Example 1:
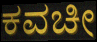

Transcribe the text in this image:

ಕವಚೀ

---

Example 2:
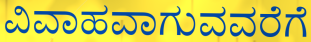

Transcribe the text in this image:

ವಿವಾಹವಾಗುವವರೆಗೆ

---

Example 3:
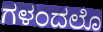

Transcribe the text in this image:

ಗಳಂದಲೊ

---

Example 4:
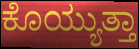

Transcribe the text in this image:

ಕೊಯ್ಯುತ್ತಾ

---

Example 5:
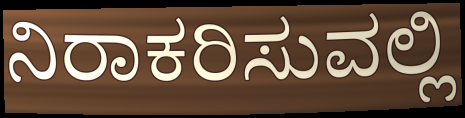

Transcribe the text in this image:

ನಿರಾಕರಿಸುವಲ್ಲಿ